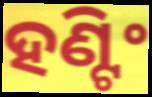
ହଣ୍ଟିଂ